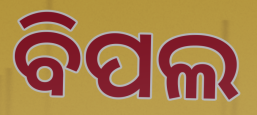
ବିପଲ